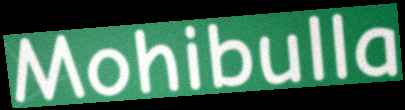
Mohibulla